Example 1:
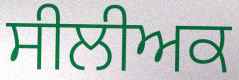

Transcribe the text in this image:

ਸੀਲੀਅਕ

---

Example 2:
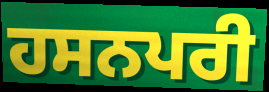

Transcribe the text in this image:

ਹਸਨਪਰੀ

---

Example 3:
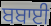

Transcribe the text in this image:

ਬਬਾਈ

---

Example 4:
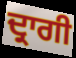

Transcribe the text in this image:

ਦ੍ਰਾਗੀ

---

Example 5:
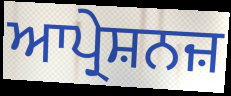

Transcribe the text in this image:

ਆਪ੍ਰੇਸ਼ਨਜ਼